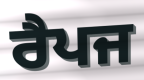
ਰੈਪਜ